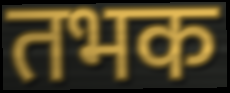
तभक